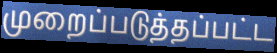
முறைப்படுத்தப்பட்ட